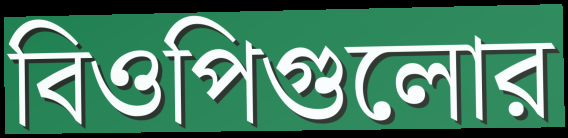
বিওপিগুলোর